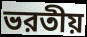
ভরতীয়